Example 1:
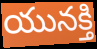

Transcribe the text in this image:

యునక్తి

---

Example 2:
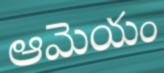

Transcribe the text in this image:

ఆమెయం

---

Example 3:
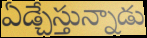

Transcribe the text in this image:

ఏడ్చేస్తున్నాడు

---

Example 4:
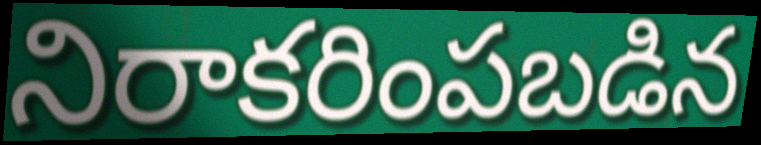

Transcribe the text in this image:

నిరాకరింపబడిన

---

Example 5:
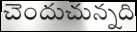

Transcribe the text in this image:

చెందుచున్నది